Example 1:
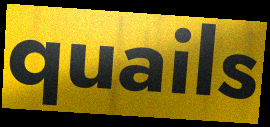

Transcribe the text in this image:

quails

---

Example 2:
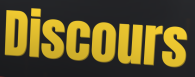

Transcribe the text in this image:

Discours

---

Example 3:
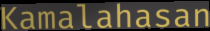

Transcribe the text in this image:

Kamalahasan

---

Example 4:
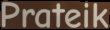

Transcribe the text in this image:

Prateik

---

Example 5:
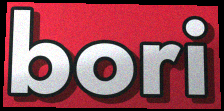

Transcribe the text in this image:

bori